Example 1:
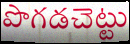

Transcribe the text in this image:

పొగడచెట్టు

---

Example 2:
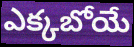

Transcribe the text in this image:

ఎక్కబోయే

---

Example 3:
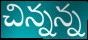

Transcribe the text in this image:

చిన్నన్న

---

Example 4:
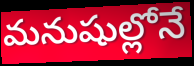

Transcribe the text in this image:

మనుషుల్లోనే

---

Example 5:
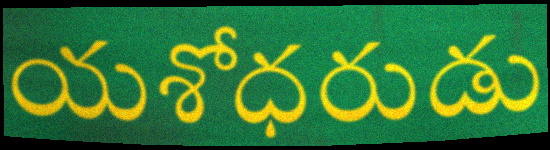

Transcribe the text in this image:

యశోధరుడు